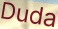
Duda